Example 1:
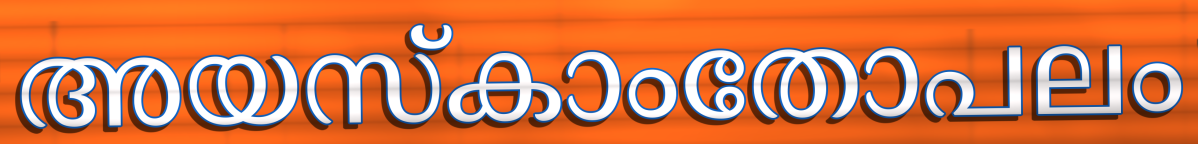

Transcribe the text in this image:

അയസ്കാംതോപലം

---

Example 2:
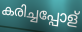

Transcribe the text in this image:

കരിച്ചപ്പോള്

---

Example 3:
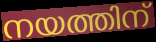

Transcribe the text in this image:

നയത്തിന്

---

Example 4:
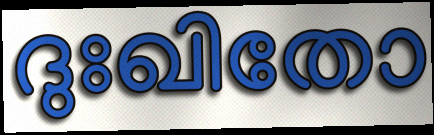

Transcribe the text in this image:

ദുഃഖിതോ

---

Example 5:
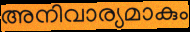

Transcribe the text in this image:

അനിവാര്യമാകും